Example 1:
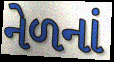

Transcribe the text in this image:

નેળનાં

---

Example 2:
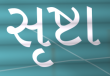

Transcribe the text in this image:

સૃષ્ટા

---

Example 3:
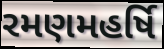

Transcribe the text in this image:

રમણમહર્ષિ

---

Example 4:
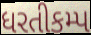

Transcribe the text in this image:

ધરતીકમ્પ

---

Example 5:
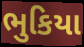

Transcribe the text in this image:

ભુકિયા